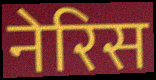
नेरिस